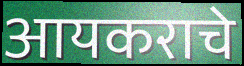
आयकराचे